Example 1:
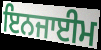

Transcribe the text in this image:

ਇਨਜਾਈਮ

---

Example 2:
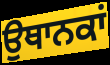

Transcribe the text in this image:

ਉਥਾਨਕਾਂ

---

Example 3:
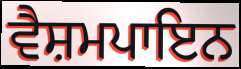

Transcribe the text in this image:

ਵੈਸ਼ਮਪਾਇਨ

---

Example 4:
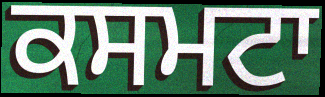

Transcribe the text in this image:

ਕਸਮਟਾ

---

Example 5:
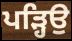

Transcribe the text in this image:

ਪੜ੍ਹਿਉ